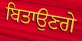
ਬਿਤਾਉਣਗੇ